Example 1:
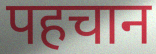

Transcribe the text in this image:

पहचान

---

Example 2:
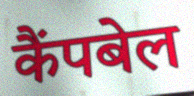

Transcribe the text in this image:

कैंपबेल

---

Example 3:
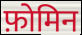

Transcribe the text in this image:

फ़ोमिन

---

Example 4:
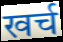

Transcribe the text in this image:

खर्च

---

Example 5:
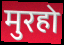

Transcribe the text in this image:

मुरहो